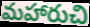
మహారుచి